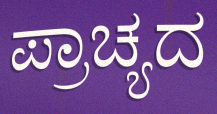
ಪ್ರಾಚ್ಯದ